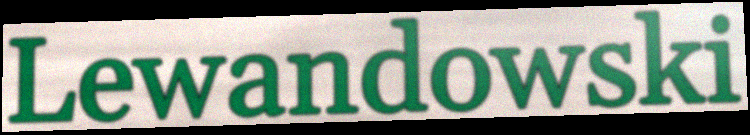
Lewandowski